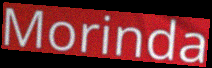
Morinda